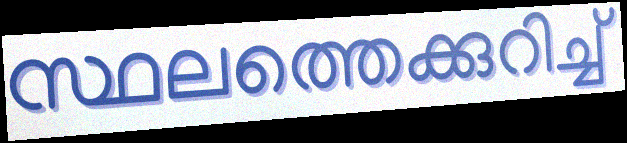
സ്ഥലത്തെക്കുറിച്ച്